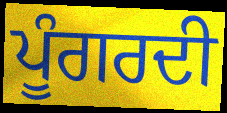
ਪੂੰਗਰਦੀ